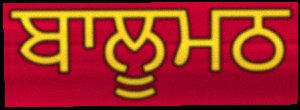
ਬਾਲੂਮਠ